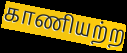
காணியற்ற